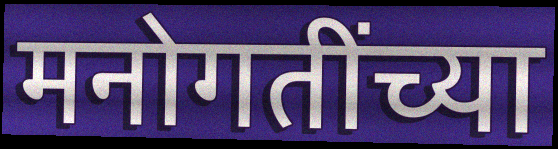
मनोगतींच्या